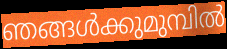
ഞങ്ങൾക്കുമുമ്പിൽ